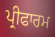
ਪ੍ਰੀਫਾਰਮ